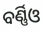
ବର୍ଣ୍ଣିଓ